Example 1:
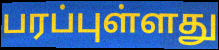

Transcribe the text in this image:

பரப்புள்ளது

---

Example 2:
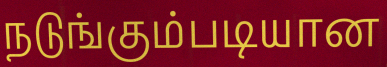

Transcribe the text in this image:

நடுங்கும்படியான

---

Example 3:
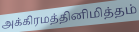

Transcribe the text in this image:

அக்கிரமத்தினிமித்தம்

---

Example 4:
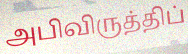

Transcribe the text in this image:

அபிவிருத்திப்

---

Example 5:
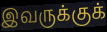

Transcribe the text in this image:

இவருக்குக்